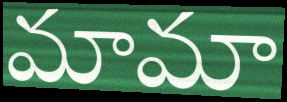
మామా